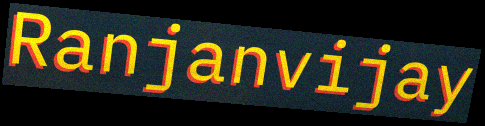
Ranjanvijay